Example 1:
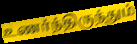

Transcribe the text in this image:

உணர்ந்திருந்தும்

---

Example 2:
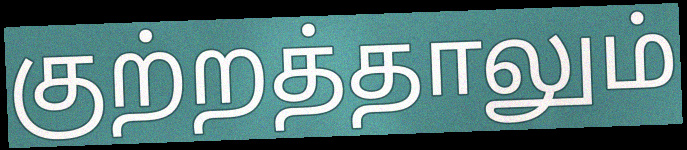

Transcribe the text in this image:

குற்றத்தாலும்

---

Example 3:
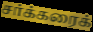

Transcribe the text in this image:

சர்க்கரைக்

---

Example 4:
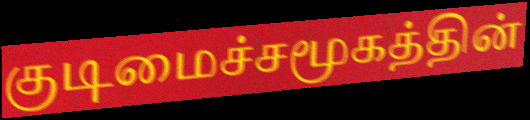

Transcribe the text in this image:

குடிமைச்சமூகத்தின்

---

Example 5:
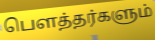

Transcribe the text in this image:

பௌத்தர்களும்